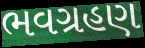
ભવગ્રહણ